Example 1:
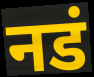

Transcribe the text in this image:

नडं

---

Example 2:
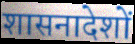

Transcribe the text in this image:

शासनादेशों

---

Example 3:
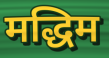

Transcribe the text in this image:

मद्धिम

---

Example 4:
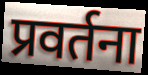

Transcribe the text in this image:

प्रवर्तना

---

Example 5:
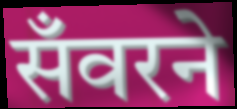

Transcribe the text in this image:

सँवरने